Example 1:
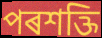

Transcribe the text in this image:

পৰশক্তি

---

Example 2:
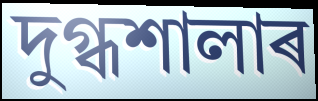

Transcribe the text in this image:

দুগ্ধশালাৰ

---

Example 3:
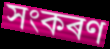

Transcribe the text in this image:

সংকৰণ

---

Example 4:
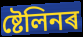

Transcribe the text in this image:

ষ্টেলিনৰ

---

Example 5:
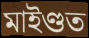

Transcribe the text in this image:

মাইণ্ডত